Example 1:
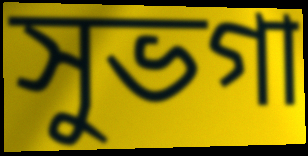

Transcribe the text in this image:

সুভগা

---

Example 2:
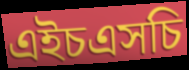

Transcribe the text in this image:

এইচএসচি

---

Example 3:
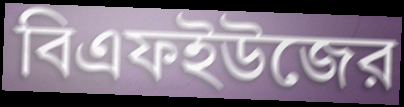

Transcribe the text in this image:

বিএফইউজের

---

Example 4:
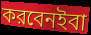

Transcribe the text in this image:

করবেনইবা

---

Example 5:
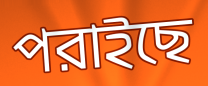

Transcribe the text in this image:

পরাইছে